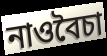
নাওবৈচা